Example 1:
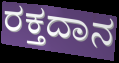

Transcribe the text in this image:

ರಕ್ತದಾನ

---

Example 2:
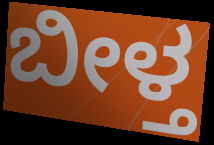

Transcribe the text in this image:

ಬೀಳ್ತ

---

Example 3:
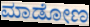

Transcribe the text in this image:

ಮಾಡೋಣ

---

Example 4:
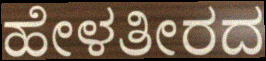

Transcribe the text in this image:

ಹೇಳತೀರದ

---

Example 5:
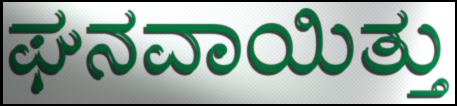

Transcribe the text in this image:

ಘನವಾಯಿತ್ತು